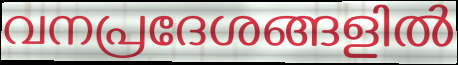
വനപ്രദേശങ്ങളിൽ